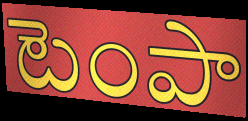
టెంపా